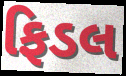
ફિડલ